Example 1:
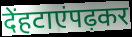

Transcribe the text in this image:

देंहटाएंपढ़कर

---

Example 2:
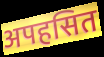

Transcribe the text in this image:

अपहसित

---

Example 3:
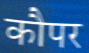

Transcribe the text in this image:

कौपर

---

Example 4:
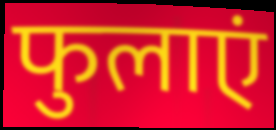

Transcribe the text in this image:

फुलाएं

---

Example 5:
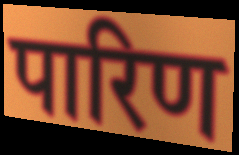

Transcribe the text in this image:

पारिण